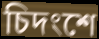
চিদংশে